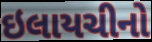
ઇલાયચીનો